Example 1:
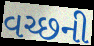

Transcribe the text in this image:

વચ્છની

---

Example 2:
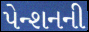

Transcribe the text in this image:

પેન્શનની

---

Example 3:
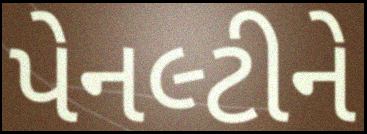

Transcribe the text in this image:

પેનલ્ટીને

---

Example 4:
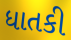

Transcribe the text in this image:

ધાતકી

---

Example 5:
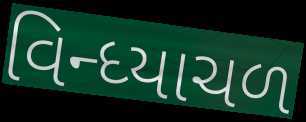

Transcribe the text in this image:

વિન્ધ્યાચળ